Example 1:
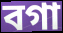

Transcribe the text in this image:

বগা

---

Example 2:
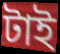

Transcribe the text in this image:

টাই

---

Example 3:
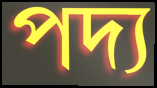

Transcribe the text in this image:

পদ্য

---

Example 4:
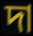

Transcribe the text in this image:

দা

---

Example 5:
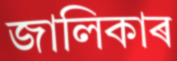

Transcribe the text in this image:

জালিকাৰ